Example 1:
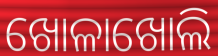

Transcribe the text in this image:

ଖୋଳାଖୋଲି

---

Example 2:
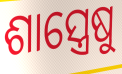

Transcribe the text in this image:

ଶାସ୍ତ୍ରେଷୁ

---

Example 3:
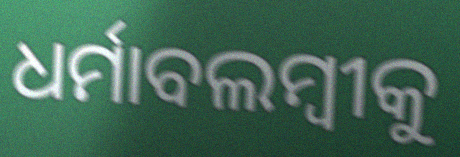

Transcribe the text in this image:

ଧର୍ମାବଲମ୍ବୀକୁ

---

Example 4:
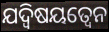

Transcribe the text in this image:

ଯଦ୍ଵିଷୟତ୍ଵେନ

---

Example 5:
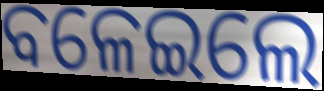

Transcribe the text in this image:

ବଳେଇଲେ